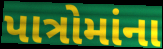
પાત્રોમાંના